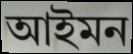
আইমন